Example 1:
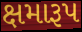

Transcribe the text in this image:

ક્ષમારૂપ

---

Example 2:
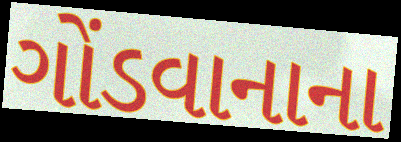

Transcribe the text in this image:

ગોંડવાનાના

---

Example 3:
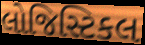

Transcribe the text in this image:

લોજિસ્ટિકલ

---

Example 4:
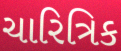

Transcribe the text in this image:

ચારિત્રિક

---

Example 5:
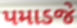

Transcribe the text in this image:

પમાડજે